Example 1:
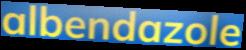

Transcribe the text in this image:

albendazole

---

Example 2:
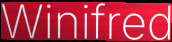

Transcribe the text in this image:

Winifred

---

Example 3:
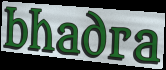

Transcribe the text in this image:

bhadra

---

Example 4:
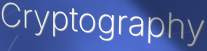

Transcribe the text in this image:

Cryptography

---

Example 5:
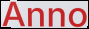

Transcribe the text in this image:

Anno